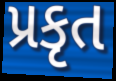
પ્રકૃત